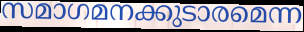
സമാഗമനക്കുടാരമെന്ന